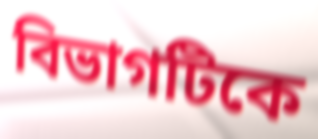
বিভাগটিকে